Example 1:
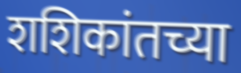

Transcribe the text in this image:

शशिकांतच्या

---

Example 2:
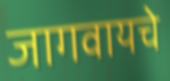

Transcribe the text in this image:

जागवायचे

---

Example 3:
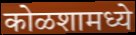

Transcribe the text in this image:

कोळशामध्ये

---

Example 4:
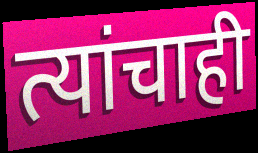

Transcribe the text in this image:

त्यांचाही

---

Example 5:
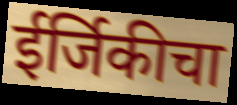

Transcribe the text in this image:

ईर्जिकीचा